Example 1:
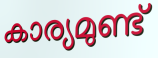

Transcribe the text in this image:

കാര്യമുണ്ട്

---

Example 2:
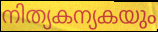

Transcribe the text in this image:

നിത്യകന്യകയും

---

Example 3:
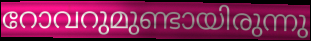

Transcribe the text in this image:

റോവറുമുണ്ടായിരുന്നു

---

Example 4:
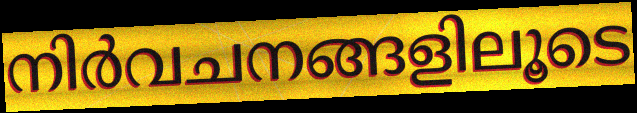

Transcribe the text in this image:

നിർവചനങ്ങളിലൂടെ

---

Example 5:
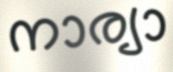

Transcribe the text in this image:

നാര്യാ